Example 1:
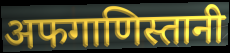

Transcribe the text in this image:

अफगाणिस्तानी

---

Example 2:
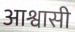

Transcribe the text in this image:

आश्वासी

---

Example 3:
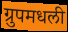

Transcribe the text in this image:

ग्रुपमधली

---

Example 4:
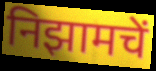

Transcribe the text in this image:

निझामचें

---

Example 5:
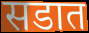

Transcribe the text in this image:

सडात